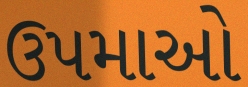
ઉપમાઓ